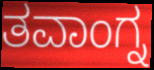
ತವಾಂಗ್ನ